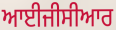
ਆਈਜੀਸੀਆਰ